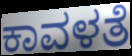
ಕಾವಳತೆ